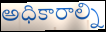
అధికారాల్ని